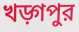
খড়্গপুর